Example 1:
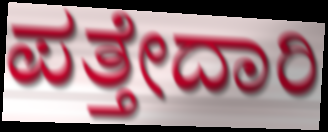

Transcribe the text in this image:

ಪತ್ತೇದಾರಿ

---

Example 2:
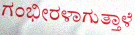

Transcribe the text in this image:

ಗಂಭೀರಳಾಗುತ್ತಾಳೆ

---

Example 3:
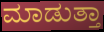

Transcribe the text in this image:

ಮಾಡುತ್ತಾ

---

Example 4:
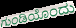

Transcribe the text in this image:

ಗುಂಡಿಯೊಂದು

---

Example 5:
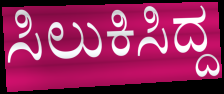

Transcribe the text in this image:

ಸಿಲುಕಿಸಿದ್ದ